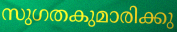
സുഗതകുമാരിക്കു